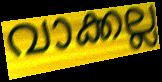
വാക്കല്ല